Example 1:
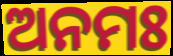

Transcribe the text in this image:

ଅନମଃ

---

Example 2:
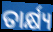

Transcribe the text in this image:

ତାର୍କ୍ଷ୍ୟ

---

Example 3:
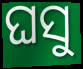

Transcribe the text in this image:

ଘସୁ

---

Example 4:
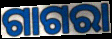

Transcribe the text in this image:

ଗାଗରା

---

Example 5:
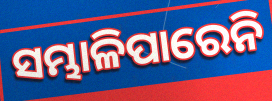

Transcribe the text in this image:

ସମ୍ଭାଳିପାରେନି